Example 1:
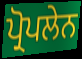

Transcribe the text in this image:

ਪ੍ਰੋਪਲੇਨ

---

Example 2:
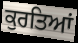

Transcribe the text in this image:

ਕੁਰਤਿਆਂ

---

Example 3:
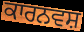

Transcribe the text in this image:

ਕਾਰਨਵਸ਼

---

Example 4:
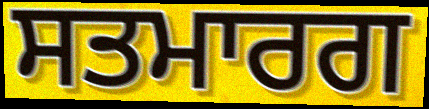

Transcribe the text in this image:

ਸਤਮਾਰਗ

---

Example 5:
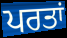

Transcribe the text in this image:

ਪਰਤਾਂ